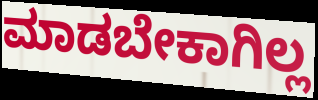
ಮಾಡಬೇಕಾಗಿಲ್ಲ